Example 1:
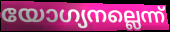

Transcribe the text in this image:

യോഗ്യനല്ലെന്ന്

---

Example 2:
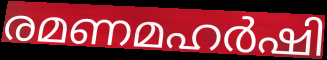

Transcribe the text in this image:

രമണമഹർഷി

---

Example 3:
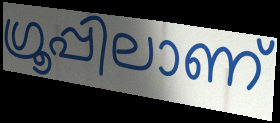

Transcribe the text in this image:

ഗ്രൂപ്പിലാണ്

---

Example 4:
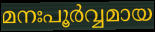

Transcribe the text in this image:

മനഃപൂർവ്വമായ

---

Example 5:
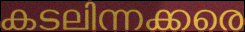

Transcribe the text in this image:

കടലിന്നക്കരെ